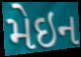
મેઇન